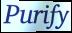
Purify